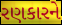
રણકારને